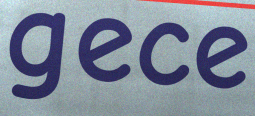
gece